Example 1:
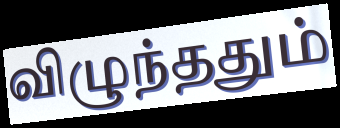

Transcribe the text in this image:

விழுந்ததும்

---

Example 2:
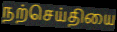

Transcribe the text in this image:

நற்செய்தியை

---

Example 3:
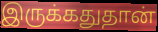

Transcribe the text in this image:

இருக்கதுதான்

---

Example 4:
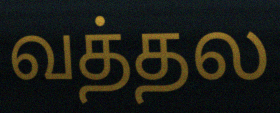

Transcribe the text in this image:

வத்தல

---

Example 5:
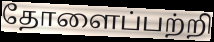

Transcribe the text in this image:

தோளைப்பற்றி